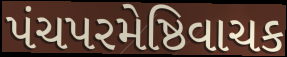
પંચપરમેષ્ઠિવાચક